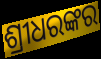
ଶ୍ରୀଧରଙ୍କର